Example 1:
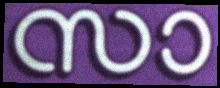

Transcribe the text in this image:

സാ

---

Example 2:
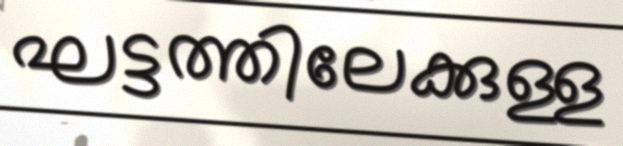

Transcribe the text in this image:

ഘട്ടത്തിലേക്കുള്ള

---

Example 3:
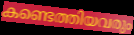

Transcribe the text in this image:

കണ്ടെത്തിയവരും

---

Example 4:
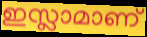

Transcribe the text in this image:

ഇസ്ലാമാണ്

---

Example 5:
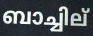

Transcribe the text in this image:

ബാച്ചില്